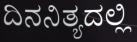
ದಿನನಿತ್ಯದಲ್ಲಿ